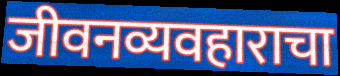
जीवनव्यवहाराचा